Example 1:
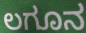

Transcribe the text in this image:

ಲಗೂನ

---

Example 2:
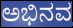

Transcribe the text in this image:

ಅಭಿನವ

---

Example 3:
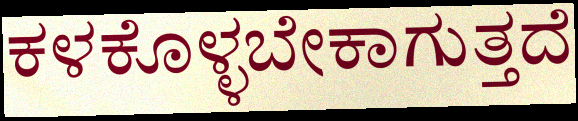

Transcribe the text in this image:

ಕಳಕೊಳ್ಳಬೇಕಾಗುತ್ತದೆ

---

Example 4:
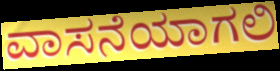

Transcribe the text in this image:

ವಾಸನೆಯಾಗಲಿ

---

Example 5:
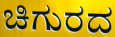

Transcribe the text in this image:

ಚಿಗುರದ